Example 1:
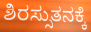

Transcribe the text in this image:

ಶಿರಸ್ಸುತನಕ್ಕೆ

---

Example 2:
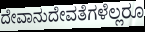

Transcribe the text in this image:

ದೇವಾನುದೇವತೆಗಳೆಲ್ಲರೂ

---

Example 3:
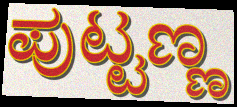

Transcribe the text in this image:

ಪುಟ್ಟಣ್ಣ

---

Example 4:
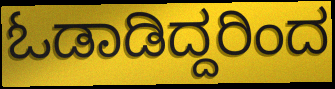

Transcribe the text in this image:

ಓಡಾಡಿದ್ದರಿಂದ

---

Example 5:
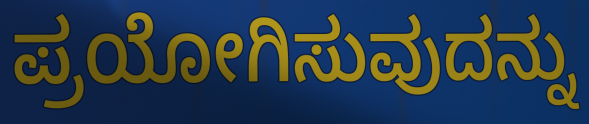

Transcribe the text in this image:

ಪ್ರಯೋಗಿಸುವುದನ್ನು